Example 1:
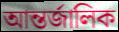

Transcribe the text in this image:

আন্তর্জালিক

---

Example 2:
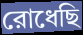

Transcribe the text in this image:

রোধেছি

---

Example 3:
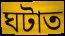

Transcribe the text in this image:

ঘটাত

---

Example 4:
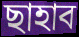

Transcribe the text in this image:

ছাহাব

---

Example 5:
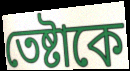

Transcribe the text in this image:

তেষ্টাকে